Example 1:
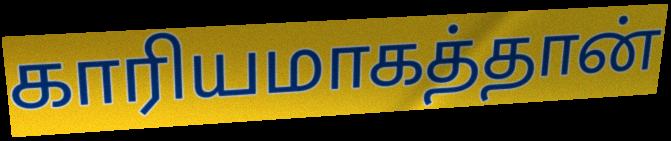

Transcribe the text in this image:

காரியமாகத்தான்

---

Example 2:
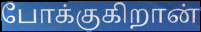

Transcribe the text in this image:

போக்குகிறான்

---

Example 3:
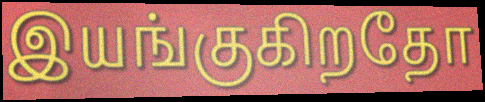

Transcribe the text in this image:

இயங்குகிறதோ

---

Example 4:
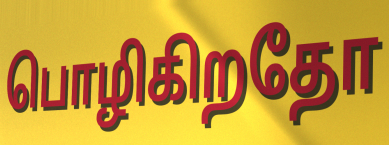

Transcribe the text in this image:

பொழிகிறதோ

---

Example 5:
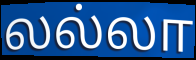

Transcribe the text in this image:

லல்லா